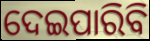
ଦେଇପାରିବି